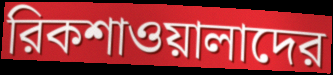
রিকশাওয়ালাদের